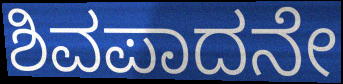
ಶಿವಪಾದನೇ